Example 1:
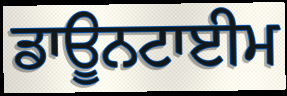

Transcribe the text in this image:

ਡਾਊਨਟਾਈਮ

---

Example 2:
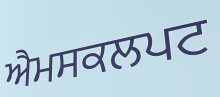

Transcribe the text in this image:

ਐਮਸਕਲਪਟ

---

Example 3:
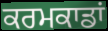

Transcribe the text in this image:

ਕਰਮਕਾਡਾਂ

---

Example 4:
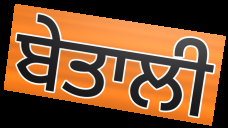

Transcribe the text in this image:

ਬੇਤਾਲੀ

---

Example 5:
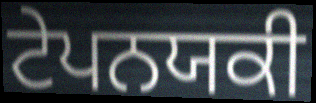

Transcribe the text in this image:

ਟੇਪਨਯਕੀ